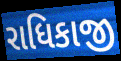
રાધિકાજી